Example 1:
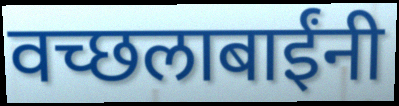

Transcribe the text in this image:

वच्छलाबाईंनी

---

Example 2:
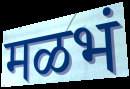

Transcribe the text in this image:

मळभं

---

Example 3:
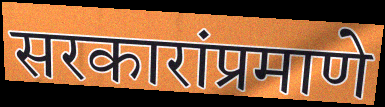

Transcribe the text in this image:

सरकारांप्रमाणे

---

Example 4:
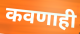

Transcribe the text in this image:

कवणाही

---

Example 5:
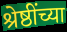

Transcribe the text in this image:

श्रेष्ठींच्या